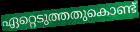
ഏറ്റെടുത്തതുകൊണ്ട്